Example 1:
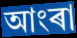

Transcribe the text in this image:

আংৰা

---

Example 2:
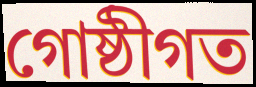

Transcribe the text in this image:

গোষ্ঠীগত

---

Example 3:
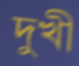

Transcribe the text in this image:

দুখী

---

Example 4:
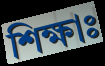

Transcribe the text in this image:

শিক্ষাঃ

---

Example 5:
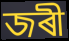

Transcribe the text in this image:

জৰী